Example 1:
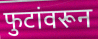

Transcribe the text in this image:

फुटांवरून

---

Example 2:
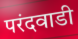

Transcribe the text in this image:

परंदवाडी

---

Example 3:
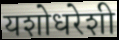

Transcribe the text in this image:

यशोधरेशी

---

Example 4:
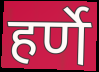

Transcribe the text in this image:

हर्णे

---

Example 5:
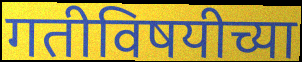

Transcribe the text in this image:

गतीविषयीच्या